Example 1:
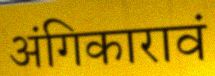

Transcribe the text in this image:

अंगिकारावं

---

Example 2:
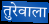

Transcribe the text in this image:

तुरेवाला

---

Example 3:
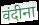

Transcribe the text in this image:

वंदीना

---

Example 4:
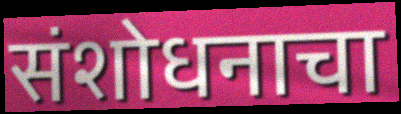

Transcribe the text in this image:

संशोधनाचा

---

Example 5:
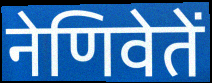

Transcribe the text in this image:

नेणिवेतें